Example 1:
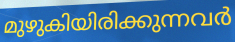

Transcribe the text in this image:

മുഴുകിയിരിക്കുന്നവർ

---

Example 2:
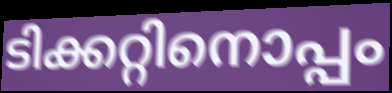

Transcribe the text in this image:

ടിക്കറ്റിനൊപ്പം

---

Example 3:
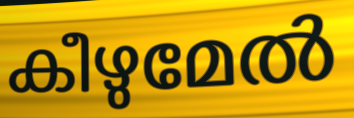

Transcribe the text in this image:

കീഴുമേൽ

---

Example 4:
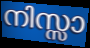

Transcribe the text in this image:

നിസ്സാ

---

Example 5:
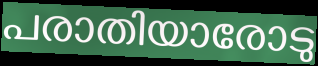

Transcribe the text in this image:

പരാതിയാരോടു